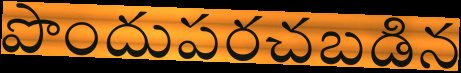
పొందుపరచబడిన